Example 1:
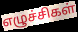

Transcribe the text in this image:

எழுச்சிகள்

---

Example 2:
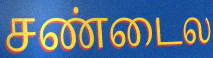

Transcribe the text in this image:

சண்டைல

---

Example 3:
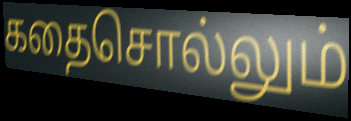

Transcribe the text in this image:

கதைசொல்லும்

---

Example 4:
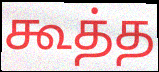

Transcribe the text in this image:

கூத்த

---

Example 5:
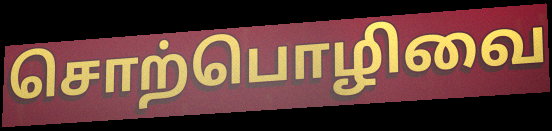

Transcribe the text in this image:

சொற்பொழிவை